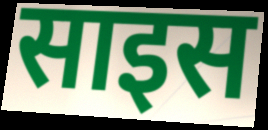
साइस